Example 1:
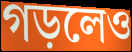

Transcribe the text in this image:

গড়লেও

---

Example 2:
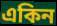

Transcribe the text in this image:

একিন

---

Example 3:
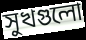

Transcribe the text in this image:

সুখগুলো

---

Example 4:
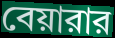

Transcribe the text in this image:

বেয়ারার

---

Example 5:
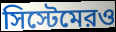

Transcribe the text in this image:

সিস্টেমেরও